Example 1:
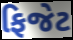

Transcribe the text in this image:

ફિજેટ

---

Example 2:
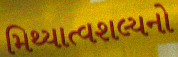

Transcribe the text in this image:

મિથ્યાત્વશલ્યનો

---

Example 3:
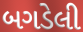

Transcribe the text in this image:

બગડેલી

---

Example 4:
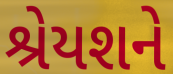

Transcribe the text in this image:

શ્રેયશને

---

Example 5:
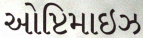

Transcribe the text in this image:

ઓપ્ટિમાઇઝ